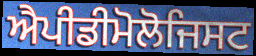
ਐਪੀਡੀਮੋਲੋਜਿਸਟ